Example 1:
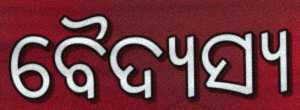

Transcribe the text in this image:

ବୈଦ୍ୟସ୍ୟ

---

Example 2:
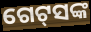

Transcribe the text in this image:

ଗେଟ୍‌ସଙ୍କ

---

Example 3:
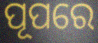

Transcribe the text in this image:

ପୂପରେ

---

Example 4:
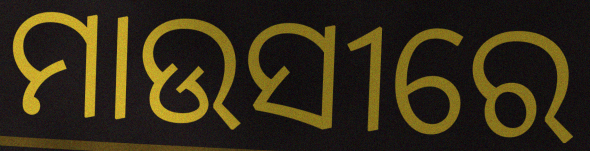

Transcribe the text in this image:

ମାଉସୀରେ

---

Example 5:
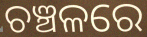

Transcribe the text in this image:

ଚଞ୍ଚଳରେ